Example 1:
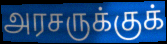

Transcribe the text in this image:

அரசருக்குக்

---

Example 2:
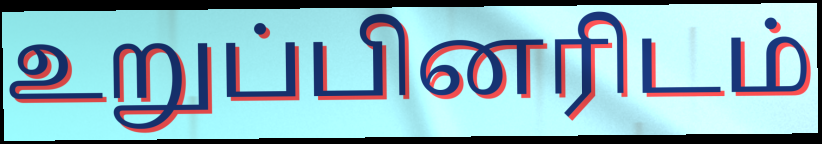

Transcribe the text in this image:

உறுப்பினரிடம்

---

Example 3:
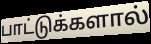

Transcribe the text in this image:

பாட்டுக்களால்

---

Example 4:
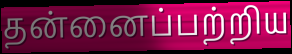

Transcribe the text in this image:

தன்னைப்பற்றிய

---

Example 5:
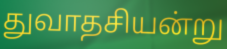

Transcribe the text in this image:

துவாதசியன்று